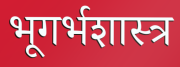
भूगर्भशास्त्र